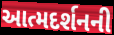
આત્મદર્શનની